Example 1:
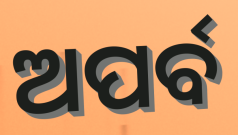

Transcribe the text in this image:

ଅପର୍ବ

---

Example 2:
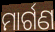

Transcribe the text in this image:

ମାର୍ଗଣ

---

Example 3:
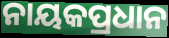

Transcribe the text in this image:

ନାୟକପ୍ରଧାନ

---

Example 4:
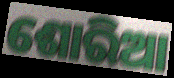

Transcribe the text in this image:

ଶୋରିଆ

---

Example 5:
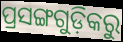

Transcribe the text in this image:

ପ୍ରସଙ୍ଗଗୁଡ଼ିକରୁ